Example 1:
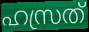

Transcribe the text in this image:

ഹസ്രത്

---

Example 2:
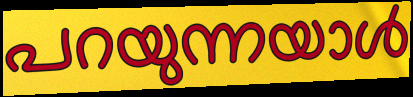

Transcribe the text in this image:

പറയുന്നയാൾ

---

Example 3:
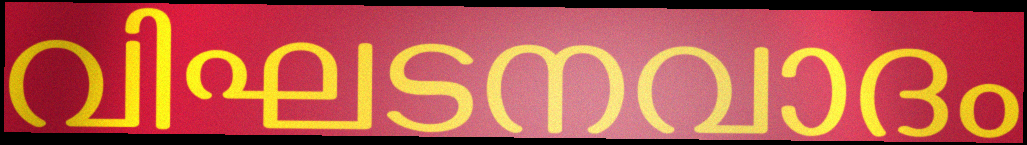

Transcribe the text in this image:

വിഘടനവാദം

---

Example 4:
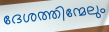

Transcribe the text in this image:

ദേശത്തിന്മേലും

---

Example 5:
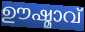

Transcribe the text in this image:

ഊഷ്മാവ്